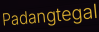
Padangtegal